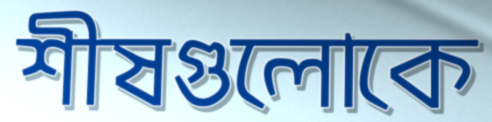
শীষগুলোকে